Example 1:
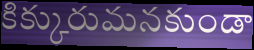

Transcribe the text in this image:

కిక్కురుమనకుండా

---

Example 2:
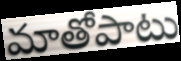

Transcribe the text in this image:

మాతోపాటు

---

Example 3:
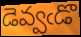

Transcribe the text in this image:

డెవ్వఁడొ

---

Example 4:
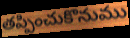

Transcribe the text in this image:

తప్పించుకొనుము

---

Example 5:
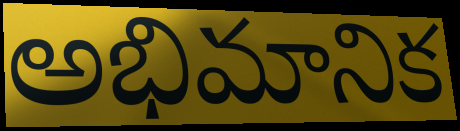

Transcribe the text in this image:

అభిమానిక